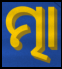
ତ୍ମା